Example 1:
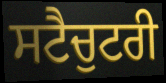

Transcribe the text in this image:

ਸਟੈਚੁਟਰੀ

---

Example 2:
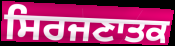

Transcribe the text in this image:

ਸਿਰਜਣਾਤਕ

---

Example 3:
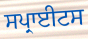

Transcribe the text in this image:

ਸਪ੍ਰਾਈਟਸ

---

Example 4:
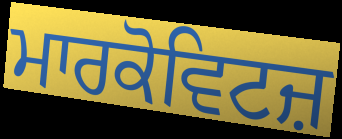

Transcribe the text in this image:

ਮਾਰਕੋਵਿਟਜ਼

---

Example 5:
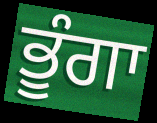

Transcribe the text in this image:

ਭੂੰਗਾ